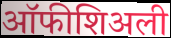
ऑफीशिअली